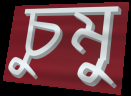
চুমু